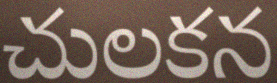
చులకన